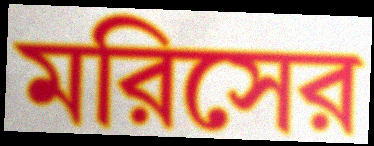
মরিসের